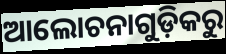
ଆଲୋଚନାଗୁଡ଼ିକରୁ